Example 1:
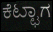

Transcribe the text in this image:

ಕೆಟ್ಟಾಗ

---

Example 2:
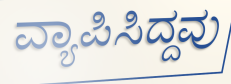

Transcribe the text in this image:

ವ್ಯಾಪಿಸಿದ್ದವು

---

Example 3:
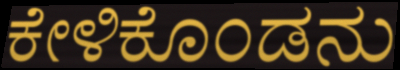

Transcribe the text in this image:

ಕೇಳಿಕೊಂಡನು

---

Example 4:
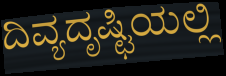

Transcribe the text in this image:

ದಿವ್ಯದೃಷ್ಟಿಯಲ್ಲಿ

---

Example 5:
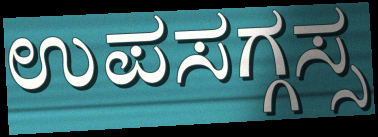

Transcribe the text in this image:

ಉಪಸಗ್ಗಸ್ಸ